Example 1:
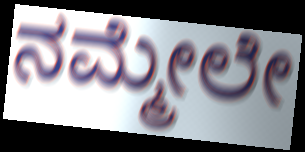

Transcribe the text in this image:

ನಮ್ಮೇಲೇ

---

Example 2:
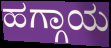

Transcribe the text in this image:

ಹಗ್ಗಾಯ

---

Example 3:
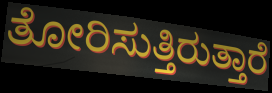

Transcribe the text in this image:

ತೋರಿಸುತ್ತಿರುತ್ತಾರೆ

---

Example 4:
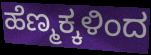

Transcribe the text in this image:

ಹೆಣ್ಮಕ್ಕಳಿಂದ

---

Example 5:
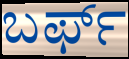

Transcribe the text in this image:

ಬರ್ಫ್